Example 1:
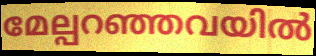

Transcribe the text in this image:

മേല്പറഞ്ഞവയിൽ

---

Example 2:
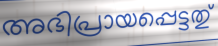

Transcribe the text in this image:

അഭിപ്രായപ്പെട്ടതു്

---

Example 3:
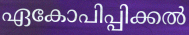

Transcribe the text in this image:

ഏകോപിപ്പിക്കൽ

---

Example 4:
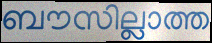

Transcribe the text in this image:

ബൗസില്ലാത്ത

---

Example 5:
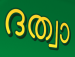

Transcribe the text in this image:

ദത്വാ